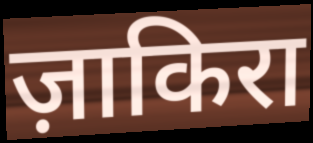
ज़ाकिरा